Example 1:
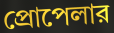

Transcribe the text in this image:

প্রোপেলার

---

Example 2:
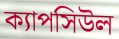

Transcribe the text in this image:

ক্যাপসিউল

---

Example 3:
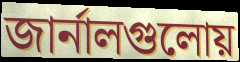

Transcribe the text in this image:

জার্নালগুলোয়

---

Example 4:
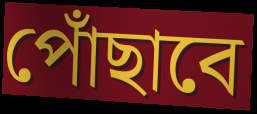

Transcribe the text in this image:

পোঁছাবে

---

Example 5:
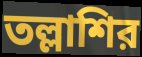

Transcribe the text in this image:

তল্লাশির